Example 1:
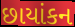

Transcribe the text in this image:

છાયાંકન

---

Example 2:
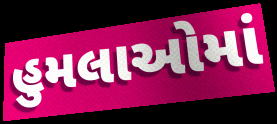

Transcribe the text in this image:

હુમલાઓમાં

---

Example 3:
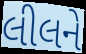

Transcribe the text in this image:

લીલને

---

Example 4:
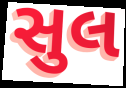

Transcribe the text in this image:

સુલ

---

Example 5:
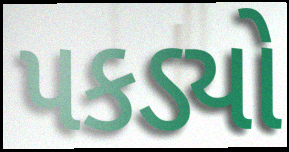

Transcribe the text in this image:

પકડ્યો